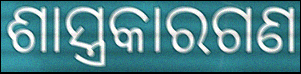
ଶାସ୍ତ୍ରକାରଗଣ